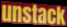
unstack